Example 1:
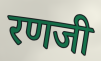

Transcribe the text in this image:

रणजी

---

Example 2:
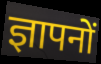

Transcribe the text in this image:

ज्ञापनों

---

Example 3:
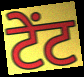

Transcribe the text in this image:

टेंट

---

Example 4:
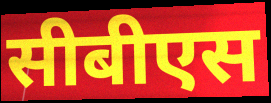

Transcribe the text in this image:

सीबीएस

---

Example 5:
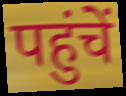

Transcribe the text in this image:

पहुंचें